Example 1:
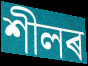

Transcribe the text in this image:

শীলৰ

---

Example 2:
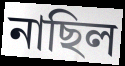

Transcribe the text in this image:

নাছিল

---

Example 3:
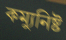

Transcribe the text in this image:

কম্যুনিষ্ট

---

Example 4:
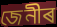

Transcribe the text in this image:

জেনীৰ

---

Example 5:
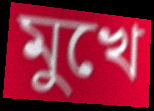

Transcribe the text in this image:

মুখে